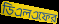
ডিএলএফের